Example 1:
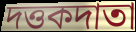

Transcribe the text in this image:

দত্তকদাতা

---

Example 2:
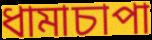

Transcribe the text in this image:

ধামাচাপা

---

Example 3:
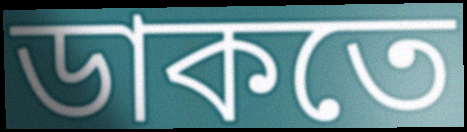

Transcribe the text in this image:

ডাকতে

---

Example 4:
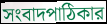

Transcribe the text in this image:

সংবাদপাঠিকার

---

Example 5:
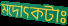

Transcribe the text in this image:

মদোৎকটাঃ